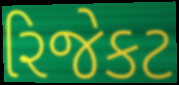
રિજેકટ